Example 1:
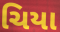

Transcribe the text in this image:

ચિયા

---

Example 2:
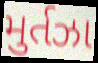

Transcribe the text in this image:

મુર્તઝા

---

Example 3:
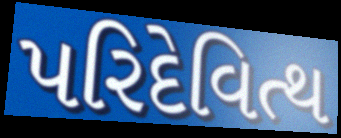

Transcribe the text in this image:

પરિદેવિત્થ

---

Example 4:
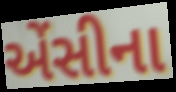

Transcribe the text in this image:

એંસીના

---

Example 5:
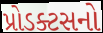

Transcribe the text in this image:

પ્રોડક્ટસનો